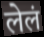
लेलं